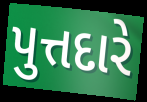
પુત્તદારે